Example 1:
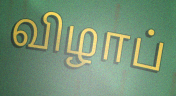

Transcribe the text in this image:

விழாப்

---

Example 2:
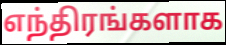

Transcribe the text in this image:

எந்திரங்களாக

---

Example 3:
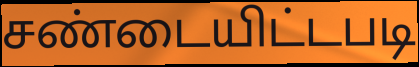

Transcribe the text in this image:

சண்டையிட்டபடி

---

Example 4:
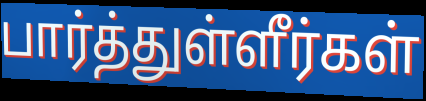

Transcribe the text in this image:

பார்த்துள்ளீர்கள்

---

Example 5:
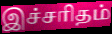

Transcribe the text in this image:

இச்சரிதம்